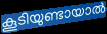
കൂടിയുണ്ടായാൽ